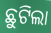
ଛୁଟିଲା